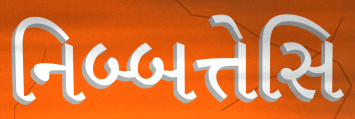
નિબ્બત્તેસિ